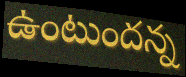
ఉంటుందన్న